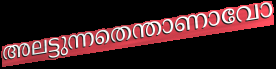
അലട്ടുന്നതെന്താണാവോ